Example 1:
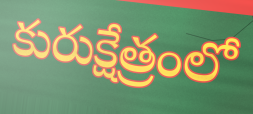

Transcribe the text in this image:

కురుక్షేత్రంలో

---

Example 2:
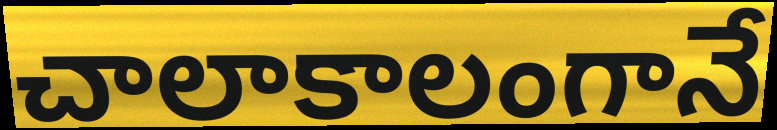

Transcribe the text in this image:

చాలాకాలంగానే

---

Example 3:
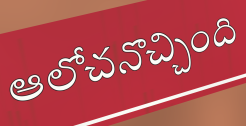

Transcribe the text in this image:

ఆలోచనొచ్చింది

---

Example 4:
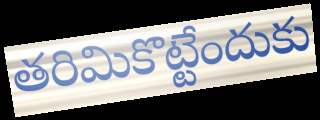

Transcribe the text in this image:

తరిమికొట్టేందుకు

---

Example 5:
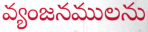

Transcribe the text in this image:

వ్యంజనములను